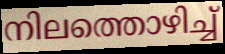
നിലത്തൊഴിച്ച്